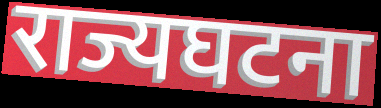
राज्यघटना